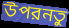
উপরনতু